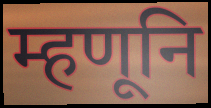
म्हणूनि